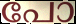
പോ